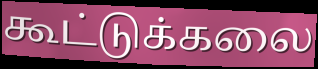
கூட்டுக்கலை